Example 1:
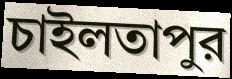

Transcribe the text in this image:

চাইলতাপুর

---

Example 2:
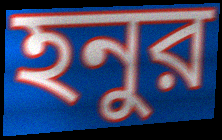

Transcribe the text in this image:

হনুর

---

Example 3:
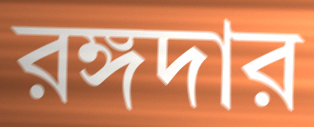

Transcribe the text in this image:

রঙ্গদার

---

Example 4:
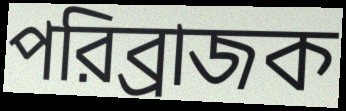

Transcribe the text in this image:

পরিব্রাজক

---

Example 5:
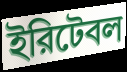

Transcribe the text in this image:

ইরিটেবল